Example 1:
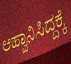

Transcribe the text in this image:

ಆಹ್ವಾನಿಸಿದ್ದಕ್ಕೆ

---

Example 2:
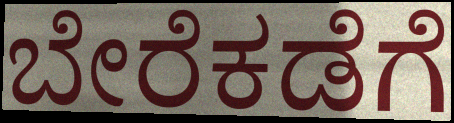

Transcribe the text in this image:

ಬೇರೆಕಡೆಗೆ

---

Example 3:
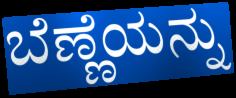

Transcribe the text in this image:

ಬೆಣ್ಣೆಯನ್ನು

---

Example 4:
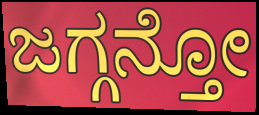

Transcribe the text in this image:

ಜಗ್ಗನ್ತೋ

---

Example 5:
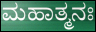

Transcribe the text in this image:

ಮಹಾತ್ಮನಃ